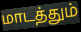
மாடத்தும்